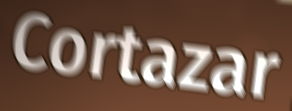
Cortazar